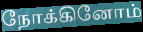
நோக்கினோம்